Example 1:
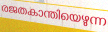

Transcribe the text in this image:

രജതകാന്തിയെഴുന്ന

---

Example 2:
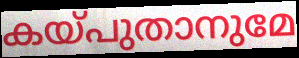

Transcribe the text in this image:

കയ്പുതാനുമേ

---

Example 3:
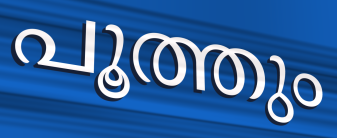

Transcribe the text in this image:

പൂത്തും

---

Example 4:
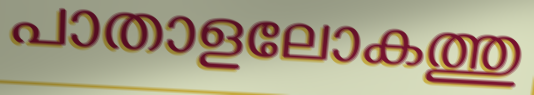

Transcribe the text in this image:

പാതാളലോകത്തു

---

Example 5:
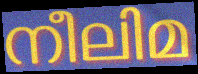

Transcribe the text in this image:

നീലിമ